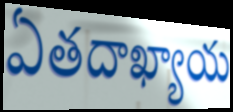
ఏతదాఖ్యాయ